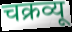
चक्रव्यू